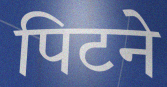
पिटने